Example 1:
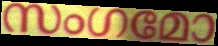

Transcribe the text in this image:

സംഗമോ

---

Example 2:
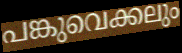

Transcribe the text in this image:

പങ്കുവെക്കലും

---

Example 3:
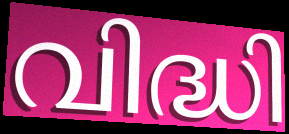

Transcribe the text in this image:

വിദ്ധി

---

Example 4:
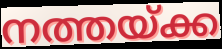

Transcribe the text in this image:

നത്തയ്ക്ക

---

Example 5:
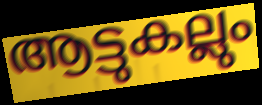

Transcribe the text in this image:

ആട്ടുകല്ലും